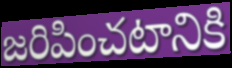
జరిపించటానికి